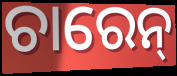
ଚାରେନ୍